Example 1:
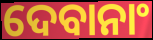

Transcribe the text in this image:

ଦେବାନାଂ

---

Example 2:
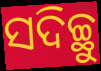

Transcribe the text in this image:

ସଦିଚ୍ଛୁ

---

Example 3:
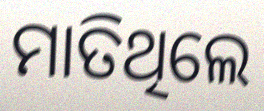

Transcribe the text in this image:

ମାତିଥିଲେ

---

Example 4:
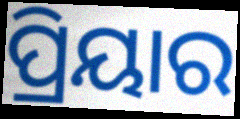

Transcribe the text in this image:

ପ୍ରିୟାର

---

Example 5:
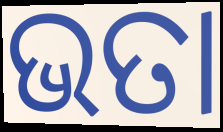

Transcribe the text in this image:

ଭତା